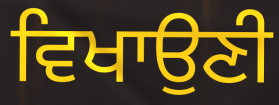
ਵਿਖਾਉਣੀ